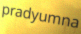
pradyumna